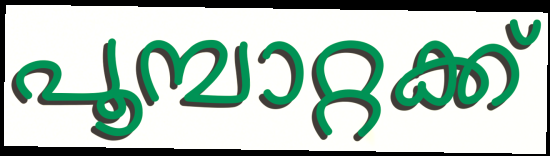
പൂമ്പാറ്റക്ക്